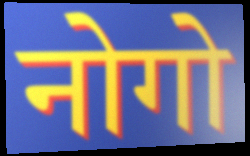
नोगो